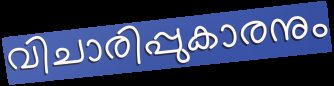
വിചാരിപ്പുകാരനും